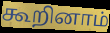
கூறினாம்